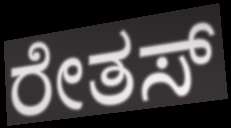
ರೇತಸ್